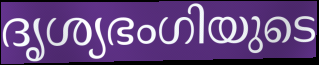
ദൃശ്യഭംഗിയുടെ